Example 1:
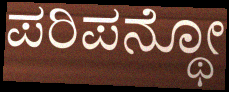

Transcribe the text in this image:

ಪರಿಪನ್ಥೋ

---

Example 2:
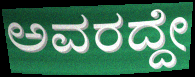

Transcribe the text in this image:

ಅವರದ್ದೇ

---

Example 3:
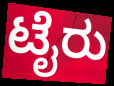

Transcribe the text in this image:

ಟೈರು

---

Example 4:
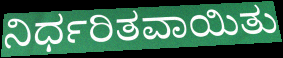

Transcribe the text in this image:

ನಿರ್ಧರಿತವಾಯಿತು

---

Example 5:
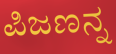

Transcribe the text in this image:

ಪಿಜಣನ್ನ